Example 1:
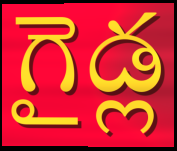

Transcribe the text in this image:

గైడ్ల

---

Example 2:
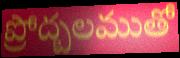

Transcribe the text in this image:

ప్రోద్బలముతో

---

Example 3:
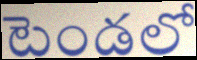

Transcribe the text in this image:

టెండలో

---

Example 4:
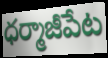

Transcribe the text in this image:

ధర్మాజీపేట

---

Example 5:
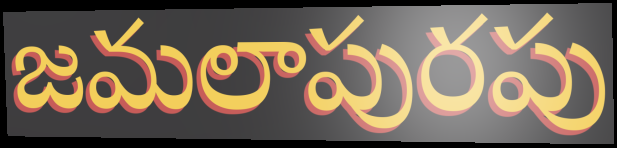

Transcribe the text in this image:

జమలాపురపు